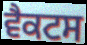
ਵੈਕਟਸ